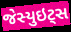
જેસ્યુઇટ્સ